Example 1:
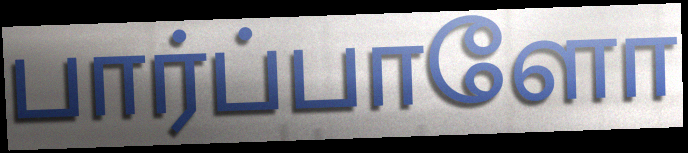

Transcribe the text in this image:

பார்ப்பாளோ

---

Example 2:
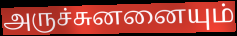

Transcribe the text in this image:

அருச்சுனனையும்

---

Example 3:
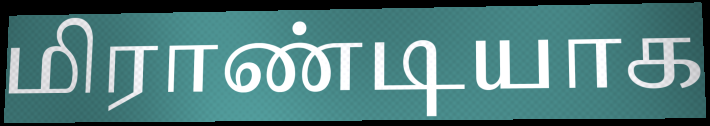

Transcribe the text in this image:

மிராண்டியாக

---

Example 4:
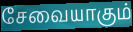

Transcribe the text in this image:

சேவையாகும்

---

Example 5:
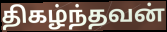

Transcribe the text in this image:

திகழ்ந்தவன்